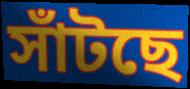
সাঁটছে